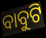
ବାବୁଟି